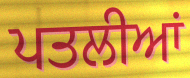
ਪਤਲੀਆਂ